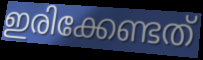
ഇരിക്കേണ്ടത്